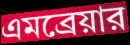
এমব্রেয়ার